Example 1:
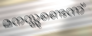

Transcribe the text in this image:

മനസ്സുണ്ടെന്ന്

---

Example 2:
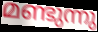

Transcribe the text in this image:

മണ്ടുന്നു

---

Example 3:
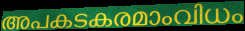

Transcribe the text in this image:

അപകടകരമാംവിധം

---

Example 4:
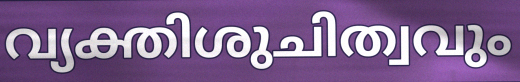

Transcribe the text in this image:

വ്യക്തിശുചിത്വവും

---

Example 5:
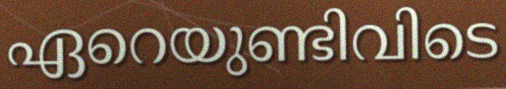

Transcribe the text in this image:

ഏറെയുണ്ടിവിടെ